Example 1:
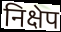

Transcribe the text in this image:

निक्षेप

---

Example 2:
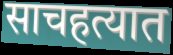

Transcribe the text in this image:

साचहत्यात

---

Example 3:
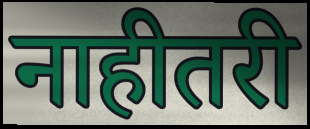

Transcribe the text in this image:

नाहीतरी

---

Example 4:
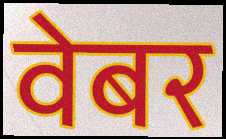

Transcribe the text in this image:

वेबर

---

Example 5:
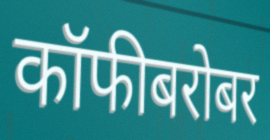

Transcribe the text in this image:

कॉफीबरोबर